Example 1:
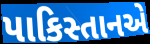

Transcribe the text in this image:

પાકિસ્તાનએ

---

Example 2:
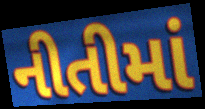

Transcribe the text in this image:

નીતીમાં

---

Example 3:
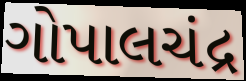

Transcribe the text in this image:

ગોપાલચંદ્ર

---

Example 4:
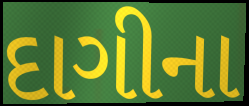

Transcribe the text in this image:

દાગીના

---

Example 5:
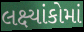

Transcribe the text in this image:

લક્ષ્યાંકોમાં